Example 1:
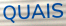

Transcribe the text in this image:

QUAIS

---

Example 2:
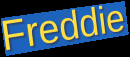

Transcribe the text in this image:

Freddie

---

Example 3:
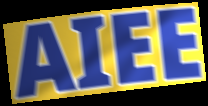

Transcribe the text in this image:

AIEE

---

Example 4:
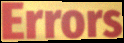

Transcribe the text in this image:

Errors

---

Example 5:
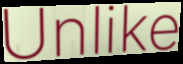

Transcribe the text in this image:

Unlike